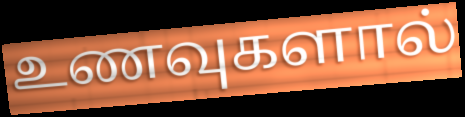
உணவுகளால்